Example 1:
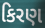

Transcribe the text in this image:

કિરણ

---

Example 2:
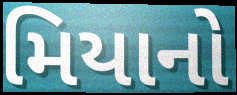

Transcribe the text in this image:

મિયાનો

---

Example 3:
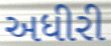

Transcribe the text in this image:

અધીરી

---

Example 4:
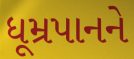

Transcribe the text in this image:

ધૂમ્રપાનને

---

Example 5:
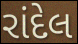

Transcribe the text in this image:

રાંદેલ